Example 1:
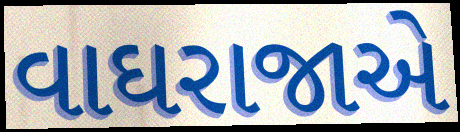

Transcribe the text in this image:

વાઘરાજાએ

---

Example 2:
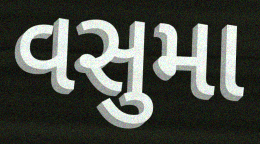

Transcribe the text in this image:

વસુમા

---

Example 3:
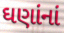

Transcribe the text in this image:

ઘણાંનાં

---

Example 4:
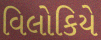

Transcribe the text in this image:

વિલોકિયે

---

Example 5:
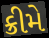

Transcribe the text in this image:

ક્રીમે